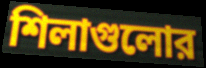
শিলাগুলোর